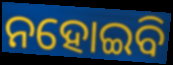
ନହୋଇବି